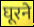
घूरने